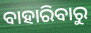
ବାହାରିବାରୁ